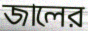
জালের